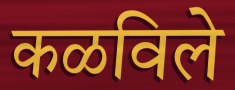
कळविले